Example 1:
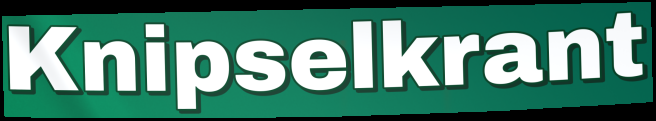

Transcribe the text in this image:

Knipselkrant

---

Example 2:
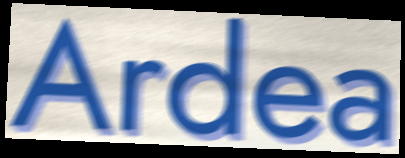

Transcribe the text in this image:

Ardea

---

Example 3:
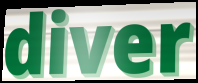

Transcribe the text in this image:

diver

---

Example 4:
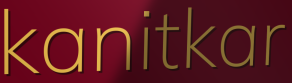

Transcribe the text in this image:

kanitkar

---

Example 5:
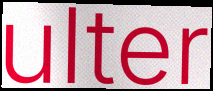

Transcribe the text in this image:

ulter